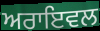
ਅਰਾਇਵਲ